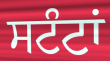
ਸਟੰਟਾਂ